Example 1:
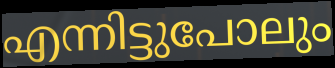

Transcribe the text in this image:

എന്നിട്ടുപോലും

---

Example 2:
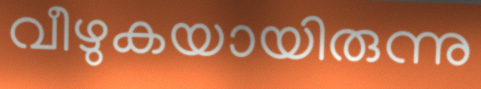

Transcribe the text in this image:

വീഴുകയായിരുന്നു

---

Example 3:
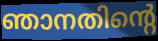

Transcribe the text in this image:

ഞാനതിന്റെ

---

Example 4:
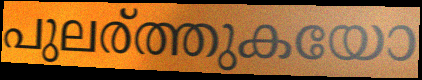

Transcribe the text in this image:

പുലര്ത്തുകയോ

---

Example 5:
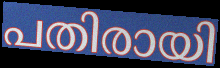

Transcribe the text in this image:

പതിരായി